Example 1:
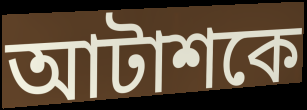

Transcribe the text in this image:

আটাশকে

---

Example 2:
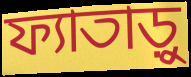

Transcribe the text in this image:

ফ্যাতাড়ু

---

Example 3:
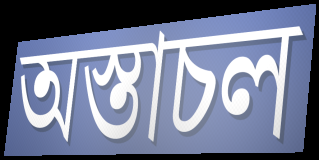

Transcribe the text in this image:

অস্তাচল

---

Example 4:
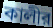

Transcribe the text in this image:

কালীর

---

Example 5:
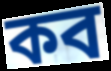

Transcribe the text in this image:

কব